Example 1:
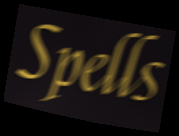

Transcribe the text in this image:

Spells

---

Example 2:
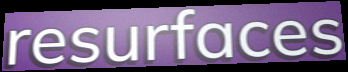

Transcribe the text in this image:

resurfaces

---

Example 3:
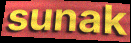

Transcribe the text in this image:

sunak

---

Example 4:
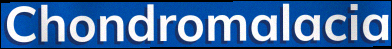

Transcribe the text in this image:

Chondromalacia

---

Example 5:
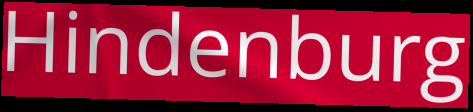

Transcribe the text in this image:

Hindenburg